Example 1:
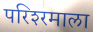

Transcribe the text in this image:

परिश्रमाला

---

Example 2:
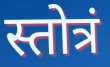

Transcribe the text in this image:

स्तोत्रं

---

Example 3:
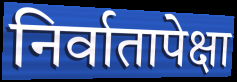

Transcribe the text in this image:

निर्वातापेक्षा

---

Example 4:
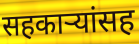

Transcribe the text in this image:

सहकाऱ्यांसह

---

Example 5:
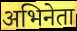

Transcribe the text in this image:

अभिनेता